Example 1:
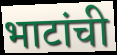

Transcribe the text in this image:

भाटांची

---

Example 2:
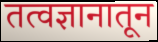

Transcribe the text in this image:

तत्वज्ञानातून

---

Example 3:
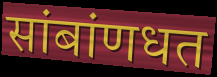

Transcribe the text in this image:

सांबांणधत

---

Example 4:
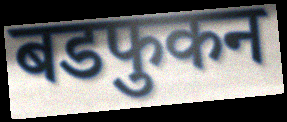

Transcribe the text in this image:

बडफुकन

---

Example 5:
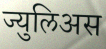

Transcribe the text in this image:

ज्युलिअस